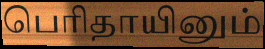
பெரிதாயினும்